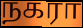
நகரா